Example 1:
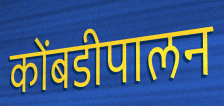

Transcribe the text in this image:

कोंबडीपालन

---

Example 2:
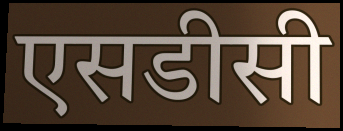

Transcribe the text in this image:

एसडीसी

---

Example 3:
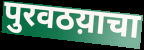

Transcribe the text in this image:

पुरवठय़ाचा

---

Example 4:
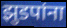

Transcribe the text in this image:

झुडपांना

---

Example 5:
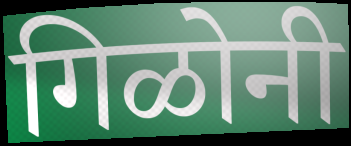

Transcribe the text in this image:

गिळोनी